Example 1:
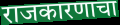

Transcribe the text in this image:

राजकारणाचा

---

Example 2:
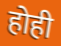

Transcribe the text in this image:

होही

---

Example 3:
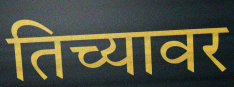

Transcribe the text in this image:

तिच्यावर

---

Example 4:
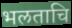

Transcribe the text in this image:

भलताचि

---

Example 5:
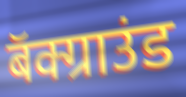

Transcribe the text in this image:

बॅक्ग्राउंड